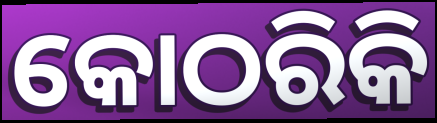
କୋଠରିକି